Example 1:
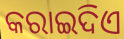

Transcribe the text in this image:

କରାଇଦିଏ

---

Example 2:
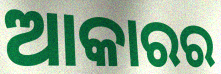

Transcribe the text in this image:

ଆକାରର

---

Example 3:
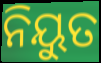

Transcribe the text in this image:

ନିୟୁତ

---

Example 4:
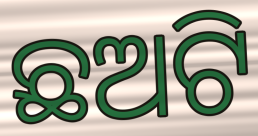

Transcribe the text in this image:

ଛଅଟି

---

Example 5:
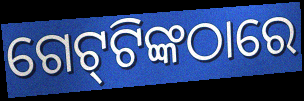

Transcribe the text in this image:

ଗେଟ୍‌ଟିଙ୍କଠାରେ